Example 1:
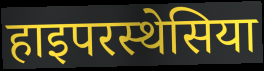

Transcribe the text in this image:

हाइपरस्थेसिया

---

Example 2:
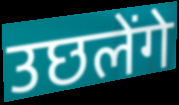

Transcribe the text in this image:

उछलेंगे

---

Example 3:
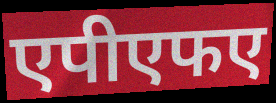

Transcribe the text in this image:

एपीएफए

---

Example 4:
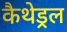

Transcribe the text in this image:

कैथेड्रल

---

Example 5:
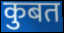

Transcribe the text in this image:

कुबत